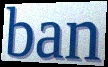
ban